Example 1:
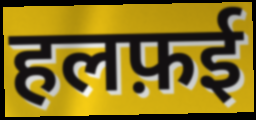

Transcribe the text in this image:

हलफ़ई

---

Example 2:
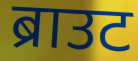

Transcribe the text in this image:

ब्राउट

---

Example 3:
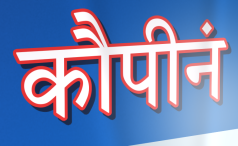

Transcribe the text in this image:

कौपीनं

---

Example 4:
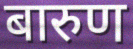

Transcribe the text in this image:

बारुण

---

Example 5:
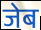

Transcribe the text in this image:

जेब